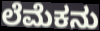
ಲೆಮೆಕನು